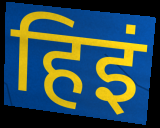
हिइं